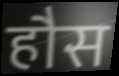
हौस